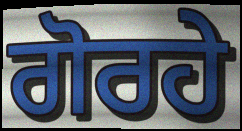
ਗੋਰਹੇ